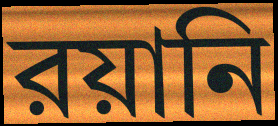
রয়ানি